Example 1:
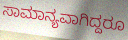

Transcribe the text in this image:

ಸಾಮಾನ್ಯವಾಗಿದ್ದರೂ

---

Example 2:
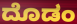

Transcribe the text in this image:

ದೊಡಂ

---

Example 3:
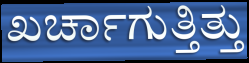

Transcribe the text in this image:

ಖರ್ಚಾಗುತ್ತಿತ್ತು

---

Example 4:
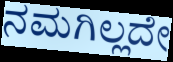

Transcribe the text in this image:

ನಮಗಿಲ್ಲದೇ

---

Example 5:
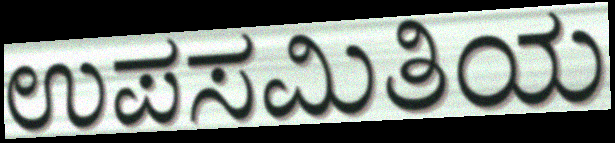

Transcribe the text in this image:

ಉಪಸಮಿತಿಯ